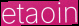
etaoin